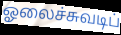
ஓலைச்சுவடிப்